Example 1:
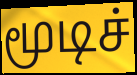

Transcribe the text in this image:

மூடிச்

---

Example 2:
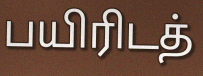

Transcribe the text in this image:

பயிரிடத்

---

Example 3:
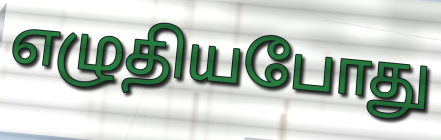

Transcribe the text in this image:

எழுதியபோது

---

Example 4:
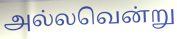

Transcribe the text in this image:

அல்லவென்று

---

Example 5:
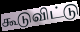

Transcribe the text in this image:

கூடுவிட்டு